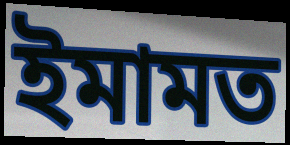
ইমামত